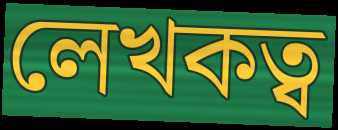
লেখকত্ব